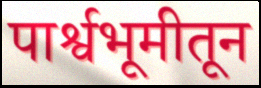
पार्श्वभूमीतून